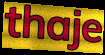
thaje